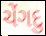
ચેંગદુ